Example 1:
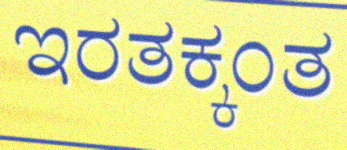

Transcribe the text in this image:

ಇರತಕ್ಕಂತ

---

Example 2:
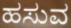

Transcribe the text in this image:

ಹಸುವ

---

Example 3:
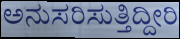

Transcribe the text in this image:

ಅನುಸರಿಸುತ್ತಿದ್ದೀರಿ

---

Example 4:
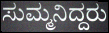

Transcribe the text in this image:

ಸುಮ್ಮನಿದ್ದರು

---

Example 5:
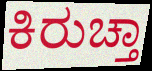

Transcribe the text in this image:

ಕಿರುಚ್ತಾ